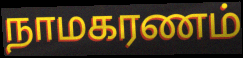
நாமகரணம்